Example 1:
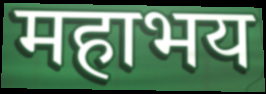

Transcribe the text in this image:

महाभय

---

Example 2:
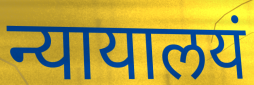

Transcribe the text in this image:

न्यायालयं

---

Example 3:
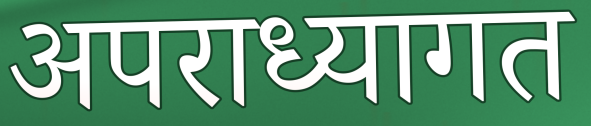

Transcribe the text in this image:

अपराध्यागत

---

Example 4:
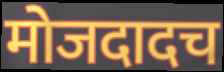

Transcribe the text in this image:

मोजदादच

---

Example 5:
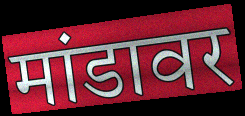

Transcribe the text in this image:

मांडावर